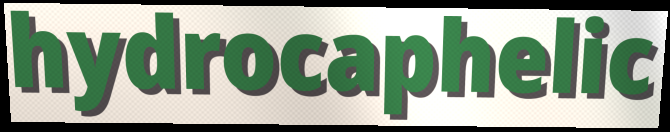
hydrocaphelic